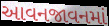
આવનજાવનમાં